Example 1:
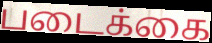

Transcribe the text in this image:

படைக்கை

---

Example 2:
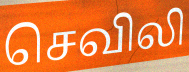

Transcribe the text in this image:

செவிலி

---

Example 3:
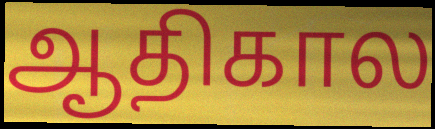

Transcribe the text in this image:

ஆதிகால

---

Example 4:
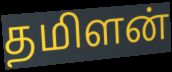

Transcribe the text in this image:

தமிளன்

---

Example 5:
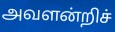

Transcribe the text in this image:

அவளன்றிச்